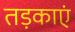
तड़काएं